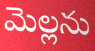
మెల్లను